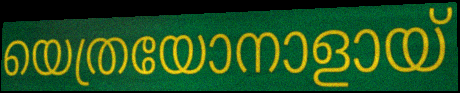
യെത്രയോനാളായ്